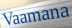
Vaamana